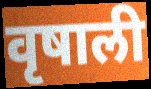
वृषाली